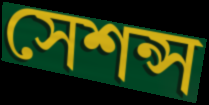
সেশন্স